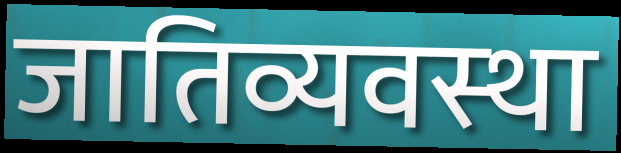
जातिव्यवस्था